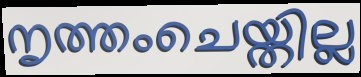
നൃത്തംചെയ്തില്ല